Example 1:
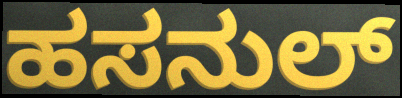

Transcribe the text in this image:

ಹಸನುಲ್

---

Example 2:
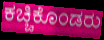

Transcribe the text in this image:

ಕಚ್ಚಿಕೊಂಡರು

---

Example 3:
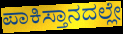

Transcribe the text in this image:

ಪಾಕಿಸ್ತಾನದಲ್ಲೇ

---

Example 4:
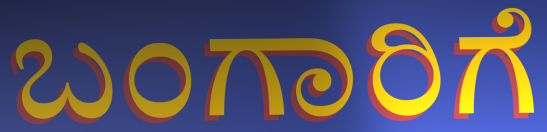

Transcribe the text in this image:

ಬಂಗಾರಿಗೆ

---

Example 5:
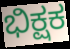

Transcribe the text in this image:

ಭಿಕ್ಷಕ